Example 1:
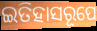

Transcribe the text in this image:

ଇତିହାସରୂପେ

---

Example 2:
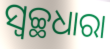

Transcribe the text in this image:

ସ୍ୱଚ୍ଛଧାରା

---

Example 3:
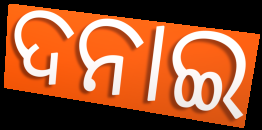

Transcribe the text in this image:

ଦନାଇ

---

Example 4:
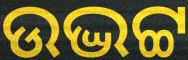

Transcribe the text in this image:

ଉଦ୍ଭଟ୍ଟ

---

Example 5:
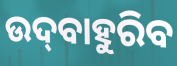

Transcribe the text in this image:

ଉଦ୍‌ବାହୁରିବ